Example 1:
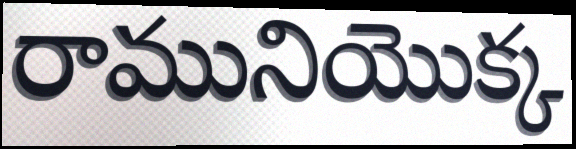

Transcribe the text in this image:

రామునియొక్క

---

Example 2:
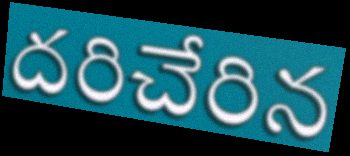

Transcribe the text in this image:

దరిచేరిన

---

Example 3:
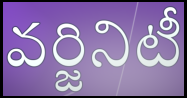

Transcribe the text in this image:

వర్జినిటీ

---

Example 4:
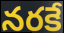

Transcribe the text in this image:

నరకే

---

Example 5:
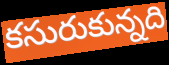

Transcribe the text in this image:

కసురుకున్నది